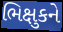
ભિક્ષુકને